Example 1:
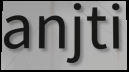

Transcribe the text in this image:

anjti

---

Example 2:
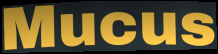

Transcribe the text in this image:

Mucus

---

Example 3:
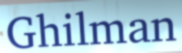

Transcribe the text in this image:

Ghilman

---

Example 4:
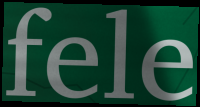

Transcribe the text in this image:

fele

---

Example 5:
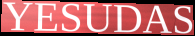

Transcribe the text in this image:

YESUDAS